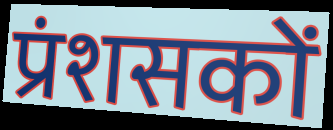
प्रंशसकों